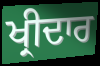
ਖ੍ਰੀਦਾਰ